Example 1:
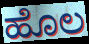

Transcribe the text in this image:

ಹೊಲ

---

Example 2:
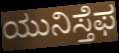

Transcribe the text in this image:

ಯುನಿಸ್ತೆಫ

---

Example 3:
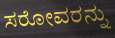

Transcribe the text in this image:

ಸರೋವರನ್ನು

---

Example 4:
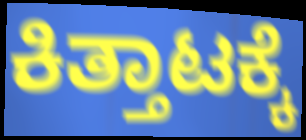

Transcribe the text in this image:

ಕಿತ್ತಾಟಕ್ಕೆ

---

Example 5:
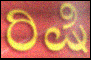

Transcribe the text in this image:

ರಿಷಿ